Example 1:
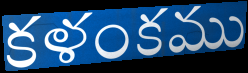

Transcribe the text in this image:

కళంకము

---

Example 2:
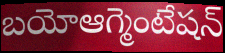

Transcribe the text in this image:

బయోఆగ్మెంటేషన్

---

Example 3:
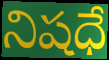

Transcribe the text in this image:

నిషధే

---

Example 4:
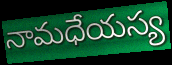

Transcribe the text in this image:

నామధేయస్య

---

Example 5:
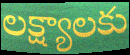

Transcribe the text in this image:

లక్ష్యాలకు